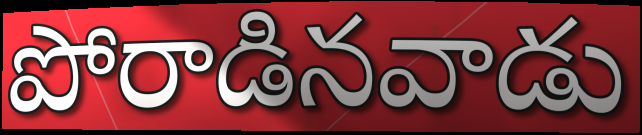
పోరాడినవాడు